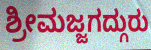
ಶ್ರೀಮಜ್ಜಗದ್ಗುರು